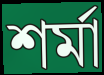
শর্মা